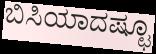
ಬಿಸಿಯಾದಷ್ಟೂ